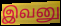
இவனு